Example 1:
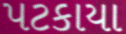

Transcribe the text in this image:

પટકાયા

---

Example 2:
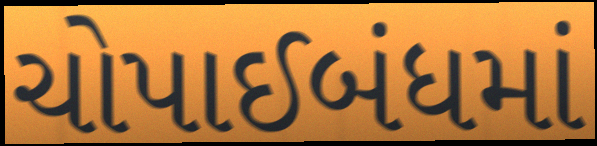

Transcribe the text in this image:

ચોપાઈબંધમાં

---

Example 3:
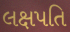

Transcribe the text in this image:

લક્ષપતિ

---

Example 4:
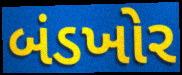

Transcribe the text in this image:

બંડખોર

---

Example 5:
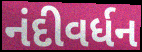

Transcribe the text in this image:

નંદીવર્ધન